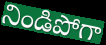
నిండిపోగా